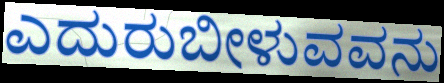
ಎದುರುಬೀಳುವವನು